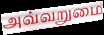
அவ்வறுமை